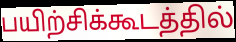
பயிற்சிக்கூடத்தில்